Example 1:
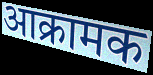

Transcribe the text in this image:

आक्रामक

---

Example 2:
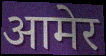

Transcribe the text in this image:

आमेर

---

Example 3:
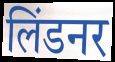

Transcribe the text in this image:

लिंडनर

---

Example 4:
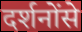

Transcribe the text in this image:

दर्शनोंसे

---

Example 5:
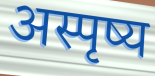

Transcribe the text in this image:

अस्पृष्य